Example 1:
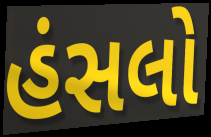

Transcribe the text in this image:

હંસલો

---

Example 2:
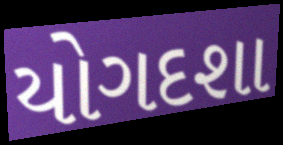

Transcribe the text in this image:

યોગદશા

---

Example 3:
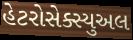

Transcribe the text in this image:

હેટરોસેક્સ્યુઅલ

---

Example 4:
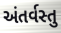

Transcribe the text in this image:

અંતર્વસ્તુ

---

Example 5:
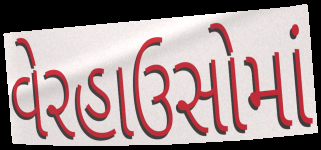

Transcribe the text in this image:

વેરહાઉસોમાં